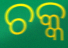
ଚକ୍କ